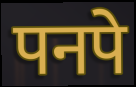
पनपे